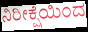
ನಿರೀಕ್ಷೆಯಿಂದ